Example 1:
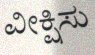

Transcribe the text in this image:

ವೀಕ್ಷಿಸು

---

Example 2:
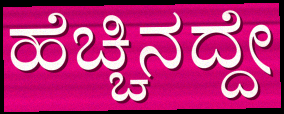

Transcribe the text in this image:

ಹೆಚ್ಚಿನದ್ದೇ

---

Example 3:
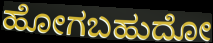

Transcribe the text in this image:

ಹೋಗಬಹುದೋ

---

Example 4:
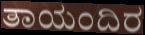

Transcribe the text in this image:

ತಾಯಂದಿರ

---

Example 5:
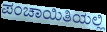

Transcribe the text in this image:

ಪಂಚಾಯಿತಿಯಲ್ಲಿ